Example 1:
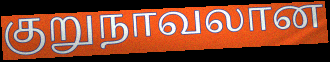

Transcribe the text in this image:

குறுநாவலான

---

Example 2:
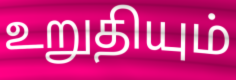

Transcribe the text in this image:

உறுதியும்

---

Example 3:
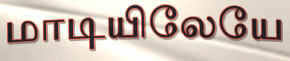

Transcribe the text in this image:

மாடியிலேயே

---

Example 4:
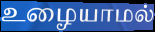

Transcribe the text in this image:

உழையாமல்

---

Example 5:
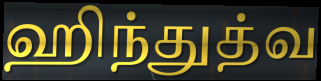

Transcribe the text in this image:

ஹிந்துத்வ